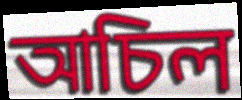
আচিল